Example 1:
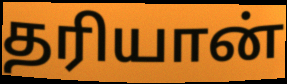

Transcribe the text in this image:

தரியான்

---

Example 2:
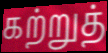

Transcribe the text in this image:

கற்றுத்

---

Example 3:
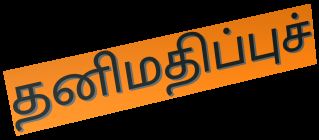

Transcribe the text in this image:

தனிமதிப்புச்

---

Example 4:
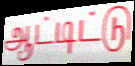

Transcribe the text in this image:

ஆட்டிட்டு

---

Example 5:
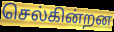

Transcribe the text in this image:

செல்கின்றன